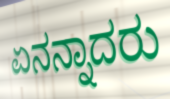
ಏನನ್ನಾದರು